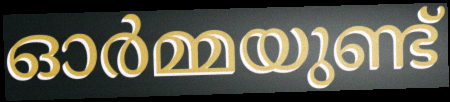
ഓർമ്മയുണ്ട്